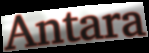
Antara